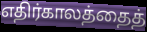
எதிர்காலத்தைத்